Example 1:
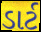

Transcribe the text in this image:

ડાર્ટ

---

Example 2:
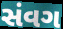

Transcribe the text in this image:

સંવગ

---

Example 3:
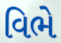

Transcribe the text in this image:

વિભે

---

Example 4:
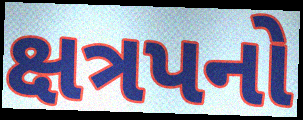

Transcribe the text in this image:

ક્ષત્રપનો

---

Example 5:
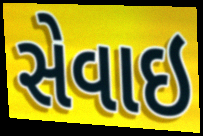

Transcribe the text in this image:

સેવાઇ